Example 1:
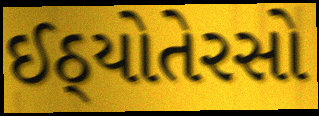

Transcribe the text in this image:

ઈઠ્યોતેરસો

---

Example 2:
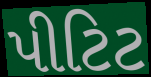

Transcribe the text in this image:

પીટિટ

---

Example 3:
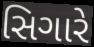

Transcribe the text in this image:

સિગારે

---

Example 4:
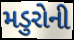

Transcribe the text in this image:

મડુરોની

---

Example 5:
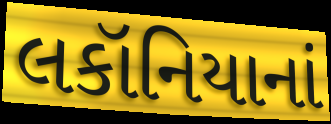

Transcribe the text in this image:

લકૉનિયાનાં